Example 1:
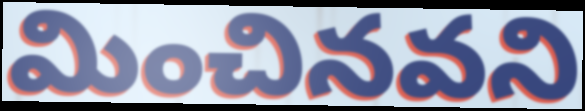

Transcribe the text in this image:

మించినవని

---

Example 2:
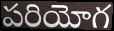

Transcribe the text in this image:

పరియోగ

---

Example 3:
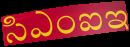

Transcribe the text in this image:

సిఎంఐఇ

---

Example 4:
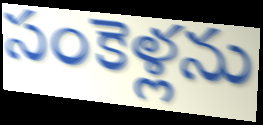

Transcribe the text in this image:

సంకెళ్లను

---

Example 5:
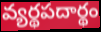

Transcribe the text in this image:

వ్యర్థపదార్థం